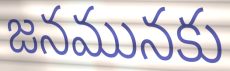
జనమునకు